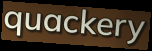
quackery